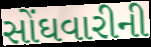
સોંઘવારીની